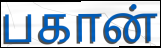
பகான்